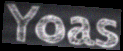
Yoas